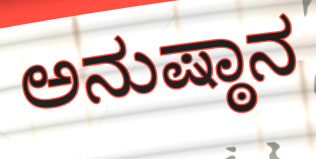
ಅನುಷ್ಠಾನ